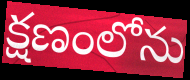
క్షణంలోను